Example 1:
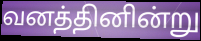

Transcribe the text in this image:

வனத்தினின்று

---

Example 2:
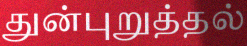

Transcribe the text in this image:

துன்புறுத்தல்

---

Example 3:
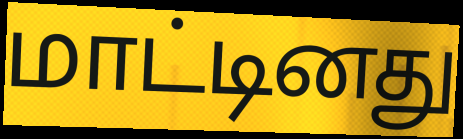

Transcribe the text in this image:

மாட்டினது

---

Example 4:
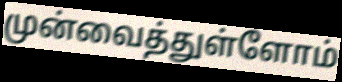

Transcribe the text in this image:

முன்வைத்துள்ளோம்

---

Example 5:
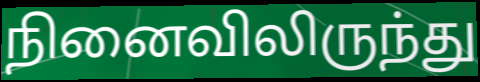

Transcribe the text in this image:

நினைவிலிருந்து